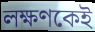
লক্ষণকেই